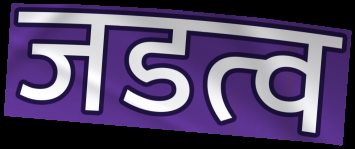
जडत्व